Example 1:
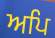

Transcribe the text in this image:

ਅਪਿ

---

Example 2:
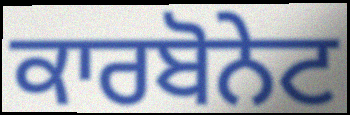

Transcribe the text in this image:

ਕਾਰਬੋਨੇਟ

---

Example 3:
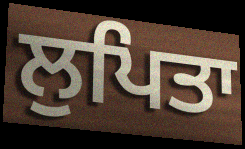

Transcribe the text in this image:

ਲੁਪਿਤਾ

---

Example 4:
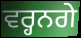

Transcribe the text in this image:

ਵਰ੍ਹਨਗੇ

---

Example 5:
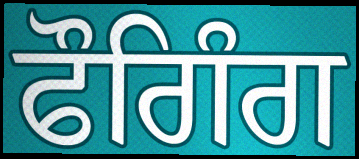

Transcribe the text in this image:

ਫੌਗਿੰਗ